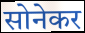
सोनेकर